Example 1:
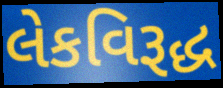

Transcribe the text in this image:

લેકવિરૂદ્ધ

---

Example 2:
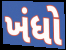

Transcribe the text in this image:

ખંધો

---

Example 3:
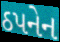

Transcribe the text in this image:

ઠપનેન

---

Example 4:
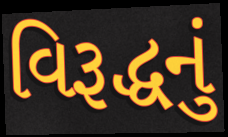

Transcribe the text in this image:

વિરૂદ્ધનું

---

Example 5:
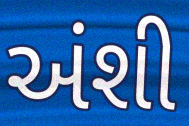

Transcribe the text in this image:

અંશી